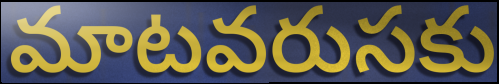
మాటవరుసకు